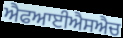
ਐਫਆਈਐਸਐਚ